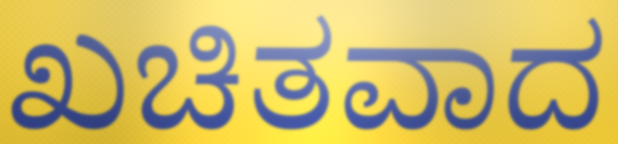
ಖಚಿತವಾದ